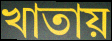
খাতায়